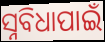
ସ୍ନବିଧାପାଇଁ